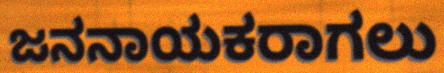
ಜನನಾಯಕರಾಗಲು